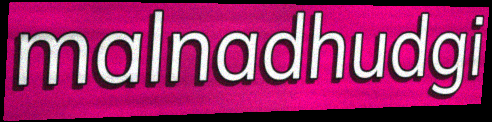
malnadhudgi